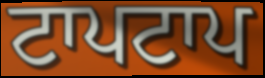
ਟਾਪਟਾਪ